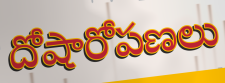
దోషారోపణలు